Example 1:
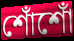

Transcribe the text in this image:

শোঁশোঁ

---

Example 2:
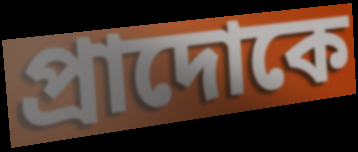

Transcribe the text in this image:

প্রাদোকে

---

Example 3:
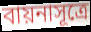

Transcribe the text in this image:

বায়নাসূত্রে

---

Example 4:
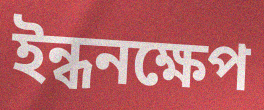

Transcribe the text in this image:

ইন্ধনক্ষেপ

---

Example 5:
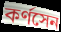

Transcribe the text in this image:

কর্ণসেন